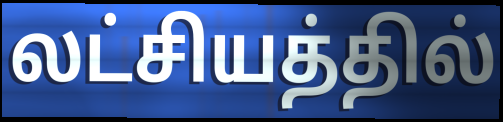
லட்சியத்தில்